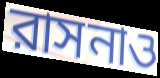
রাসনাও